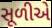
સૂળીએ